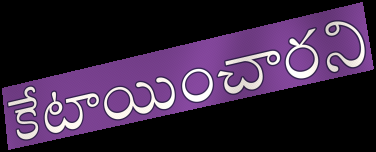
కేటాయించారని